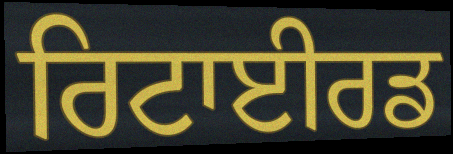
ਰਿਟਾਈਰਡ